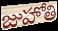
జుహోతి